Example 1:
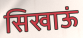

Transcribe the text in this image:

सिखाऊं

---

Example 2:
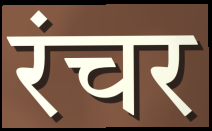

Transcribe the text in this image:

रंचर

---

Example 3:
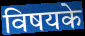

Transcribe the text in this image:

विषयके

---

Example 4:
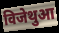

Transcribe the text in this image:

विजेथुआ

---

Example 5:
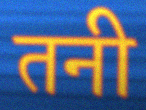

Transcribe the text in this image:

तनी